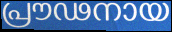
പ്രൗഢനായ